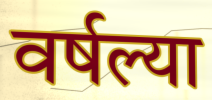
वर्षल्या